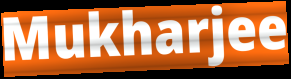
Mukharjee